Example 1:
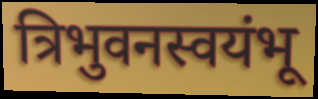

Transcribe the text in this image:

त्रिभुवनस्वयंभू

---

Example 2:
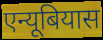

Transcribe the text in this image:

एन्यूबियास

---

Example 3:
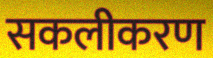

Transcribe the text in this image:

सकलीकरण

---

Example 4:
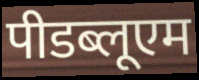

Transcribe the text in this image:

पीडब्लूएम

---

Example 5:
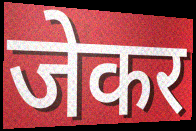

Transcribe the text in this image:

जेकर